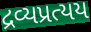
દ્રવ્યપ્રત્યય